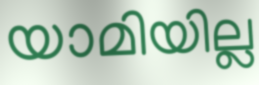
യാമിയില്ല